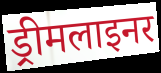
ड्रीमलाइनर